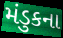
મંડુકના